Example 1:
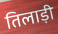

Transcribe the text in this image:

तिलाड़ी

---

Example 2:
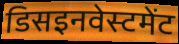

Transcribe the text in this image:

डिसइनवेस्टमेंट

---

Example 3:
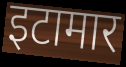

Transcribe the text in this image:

इटामार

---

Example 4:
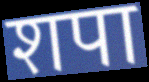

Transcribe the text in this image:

शपा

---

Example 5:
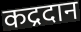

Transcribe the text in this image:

कद्रदान